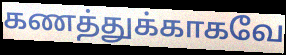
கணத்துக்காகவே